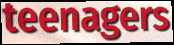
teenagers